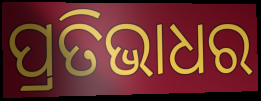
ପ୍ରତିଭାଧର